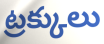
ట్రక్కులు